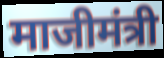
माजीमंत्री